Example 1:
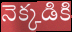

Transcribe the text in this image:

నెక్కడికి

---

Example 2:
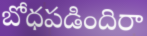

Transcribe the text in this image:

బోధపడిందిరా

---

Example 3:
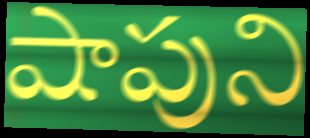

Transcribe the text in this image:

షాపుని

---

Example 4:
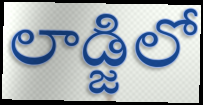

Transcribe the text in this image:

లాడ్జిలో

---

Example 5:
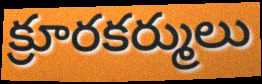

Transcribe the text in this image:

క్రూరకర్ములు